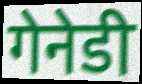
गेनेडी